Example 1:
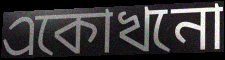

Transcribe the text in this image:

একোখনো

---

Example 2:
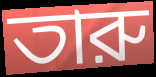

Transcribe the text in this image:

তাৰু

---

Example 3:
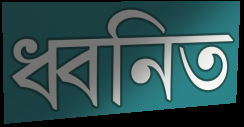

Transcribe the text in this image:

ধ্বনিত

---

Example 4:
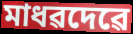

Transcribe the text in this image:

মাধৱদেৱে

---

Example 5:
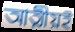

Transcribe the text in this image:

আত্মীয়ই